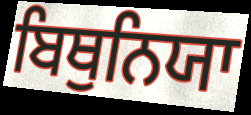
ਬਿਥੁਨਿਯਾ